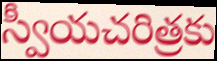
స్వీయచరిత్రకు